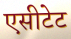
एसीटेट